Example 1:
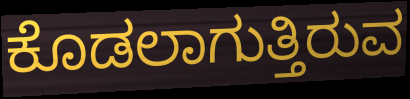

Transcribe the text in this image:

ಕೊಡಲಾಗುತ್ತಿರುವ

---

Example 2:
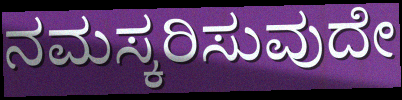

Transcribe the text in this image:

ನಮಸ್ಕರಿಸುವುದೇ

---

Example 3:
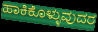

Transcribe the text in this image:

ಹಾಕಿಕೊಳ್ಳುವುದರ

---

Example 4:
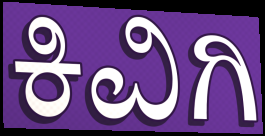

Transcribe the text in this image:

ಕಿವಿಗಿ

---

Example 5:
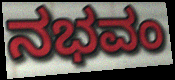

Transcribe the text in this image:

ನಭವಂ